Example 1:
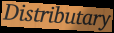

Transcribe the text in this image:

Distributary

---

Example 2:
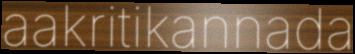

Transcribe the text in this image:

aakritikannada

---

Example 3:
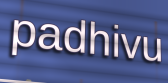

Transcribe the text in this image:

padhivu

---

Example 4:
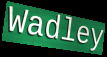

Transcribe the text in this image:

Wadley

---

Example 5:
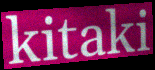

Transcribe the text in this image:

kitaki